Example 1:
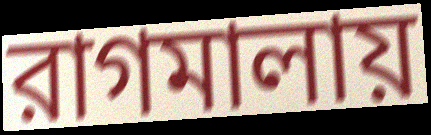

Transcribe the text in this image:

রাগমালায়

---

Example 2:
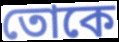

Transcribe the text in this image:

তোকে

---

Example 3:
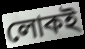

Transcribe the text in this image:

লোকই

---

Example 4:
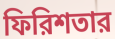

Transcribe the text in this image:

ফিরিশতার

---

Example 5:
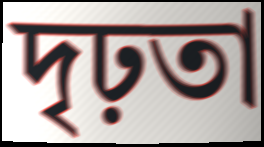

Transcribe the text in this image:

দৃঢ়তা